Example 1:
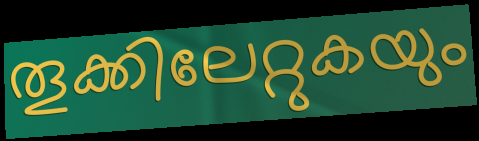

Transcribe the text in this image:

തൂക്കിലേറ്റുകയും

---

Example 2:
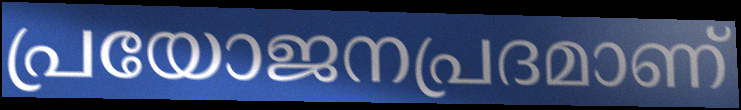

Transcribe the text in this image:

പ്രയോജനപ്രദമാണ്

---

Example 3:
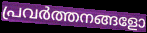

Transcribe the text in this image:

പ്രവർത്തനങ്ങളോ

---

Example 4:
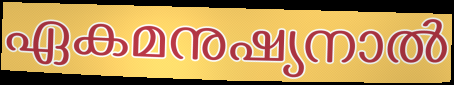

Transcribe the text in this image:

ഏകമനുഷ്യനാൽ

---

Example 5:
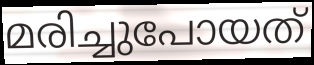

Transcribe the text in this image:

മരിച്ചുപോയത്